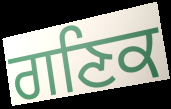
ਗਣਿਕ